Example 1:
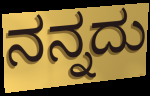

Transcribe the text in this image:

ನನ್ನದು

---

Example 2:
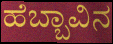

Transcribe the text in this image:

ಹೆಬ್ಬಾವಿನ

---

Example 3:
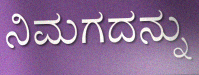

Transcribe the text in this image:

ನಿಮಗದನ್ನು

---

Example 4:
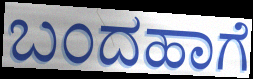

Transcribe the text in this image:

ಬಂದಹಾಗೆ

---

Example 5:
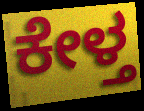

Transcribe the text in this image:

ಕೇಳ್ತ